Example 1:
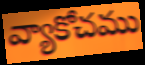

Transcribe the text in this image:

వ్యాకోచము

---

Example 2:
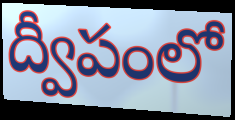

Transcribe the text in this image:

ద్వీపంలో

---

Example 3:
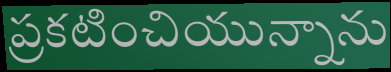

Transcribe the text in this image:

ప్రకటించియున్నాను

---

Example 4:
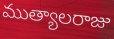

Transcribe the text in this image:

ముత్యాలరాజు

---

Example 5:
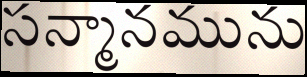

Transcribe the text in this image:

సన్మానమును